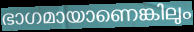
ഭാഗമായാണെങ്കിലും